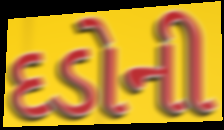
દડોની